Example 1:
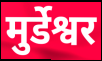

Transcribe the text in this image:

मुर्डेश्वर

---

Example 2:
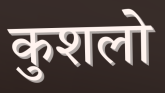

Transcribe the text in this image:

कुशलो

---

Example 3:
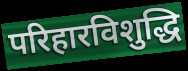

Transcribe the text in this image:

परिहारविशुद्धि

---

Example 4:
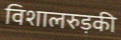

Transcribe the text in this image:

विशालरुड़की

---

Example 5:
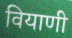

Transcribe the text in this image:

वियाणी